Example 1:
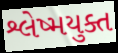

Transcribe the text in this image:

શ્લેષ્મયુક્ત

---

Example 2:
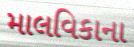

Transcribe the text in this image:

માલવિકાના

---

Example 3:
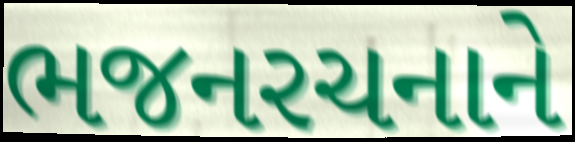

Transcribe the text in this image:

ભજનરચનાને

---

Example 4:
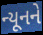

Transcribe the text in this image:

ન્યૂનને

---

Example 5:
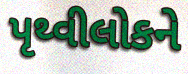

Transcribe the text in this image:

પૃથ્વીલોકને